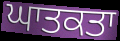
ਘਾਤਕਤਾ